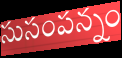
సుసంపన్నం